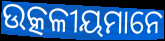
ଉତ୍କଳୀୟମାନେ